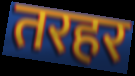
तरहर